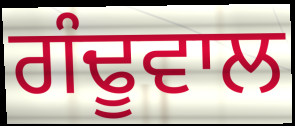
ਗੰਢੂਵਾਲ